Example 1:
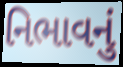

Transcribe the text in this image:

નિભાવનું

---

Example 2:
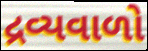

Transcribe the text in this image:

દ્રવ્યવાળો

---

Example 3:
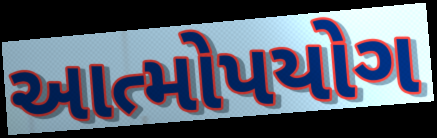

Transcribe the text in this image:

આત્મોપયોગ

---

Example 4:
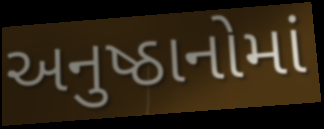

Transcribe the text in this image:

અનુષ્ઠાનોમાં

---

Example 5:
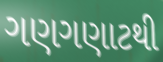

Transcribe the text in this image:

ગણગણાટથી